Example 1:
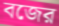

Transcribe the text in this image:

বজের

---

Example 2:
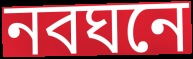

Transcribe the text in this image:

নবঘনে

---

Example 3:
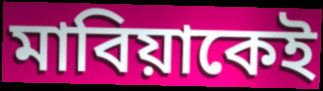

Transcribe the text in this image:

মাবিয়াকেই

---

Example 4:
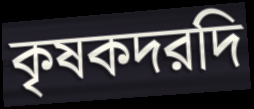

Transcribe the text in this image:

কৃষকদরদি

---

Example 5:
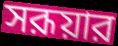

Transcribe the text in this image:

সরূয়ার